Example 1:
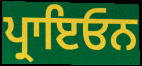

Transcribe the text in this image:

ਪ੍ਰਾਇਓਨ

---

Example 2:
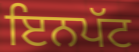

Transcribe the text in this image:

ਇਨਪੱਟ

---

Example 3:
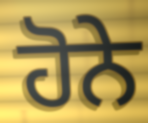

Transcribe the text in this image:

ਹੋਨੇ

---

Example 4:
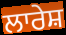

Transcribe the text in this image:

ਲਾਰੇਸ਼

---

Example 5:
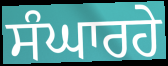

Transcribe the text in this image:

ਸੰਘਾਰਹੇ